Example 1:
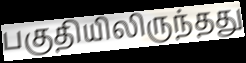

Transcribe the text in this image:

பகுதியிலிருந்தது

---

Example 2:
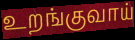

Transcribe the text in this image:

உறங்குவாய்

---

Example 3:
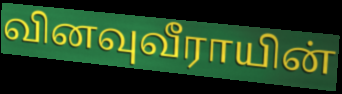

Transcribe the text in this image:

வினவுவீராயின்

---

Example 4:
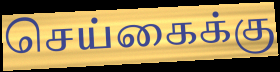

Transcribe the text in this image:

செய்கைக்கு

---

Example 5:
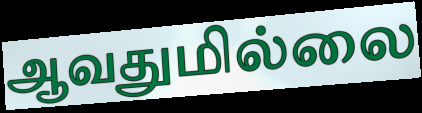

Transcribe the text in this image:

ஆவதுமில்லை